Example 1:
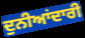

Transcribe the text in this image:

ਦੁਨੀਆਂਦਾਰੀ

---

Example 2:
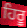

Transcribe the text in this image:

ਹਿਰੂ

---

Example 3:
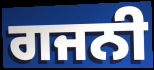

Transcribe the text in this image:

ਗਜਨੀ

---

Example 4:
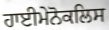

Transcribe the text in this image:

ਹਾਈਮੇਨੋਕਲਿਸ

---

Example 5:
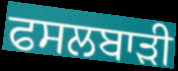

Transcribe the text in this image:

ਫਸਲਬਾੜੀ